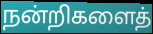
நன்றிகளைத்